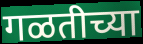
गळतीच्या